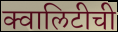
क्वालिटीची